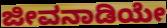
ಜೀವನಾಡಿಯೇ